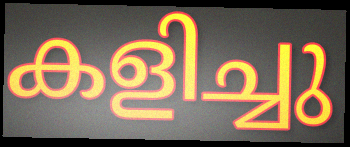
കളിച്ചു